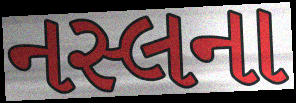
નસ્લના